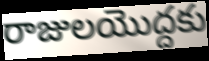
రాజులయొద్దకు